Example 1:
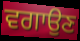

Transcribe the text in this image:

ਵਗਾਉਣ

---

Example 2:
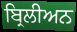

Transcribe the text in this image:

ਬ੍ਰਿਲੀਅਨ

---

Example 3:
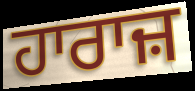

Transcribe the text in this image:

ਹਾਰਾਜ਼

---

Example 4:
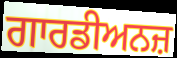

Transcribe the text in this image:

ਗਾਰਡੀਅਨਜ਼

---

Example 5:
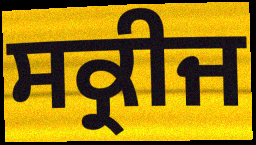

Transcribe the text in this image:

ਸਕ੍ਰੀਜ